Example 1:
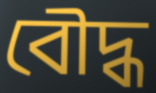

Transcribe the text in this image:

বৌদ্ধ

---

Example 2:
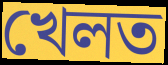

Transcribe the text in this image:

খেলত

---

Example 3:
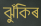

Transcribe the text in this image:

ঝুঁকিৰ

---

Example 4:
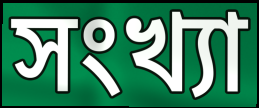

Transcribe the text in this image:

সংখ্যা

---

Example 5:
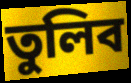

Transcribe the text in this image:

তুলিব